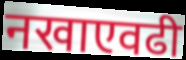
नखाएवढी